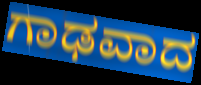
ಗಾಢವಾದ